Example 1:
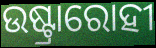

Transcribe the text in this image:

ଉଷ୍ଟ୍ରାରୋହୀ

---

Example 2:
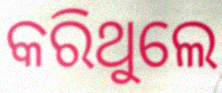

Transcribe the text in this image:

କରିଥୁଲେ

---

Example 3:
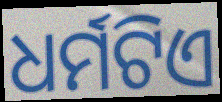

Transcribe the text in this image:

ଧର୍ମଟିଏ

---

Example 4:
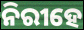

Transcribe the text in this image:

ନିରୀହେ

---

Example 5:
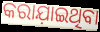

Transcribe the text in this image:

କରାଯ଼ାଇଥିବା